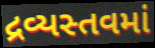
દ્રવ્યસ્તવમાં